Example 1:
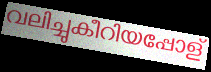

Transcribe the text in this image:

വലിച്ചുകീറിയപ്പോള്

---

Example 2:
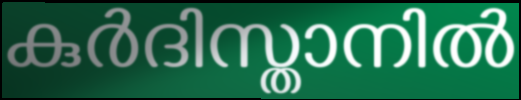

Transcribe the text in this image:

കുർദിസ്താനിൽ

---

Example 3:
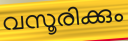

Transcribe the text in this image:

വസൂരിക്കും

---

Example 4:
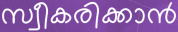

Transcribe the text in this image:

സ്വീകരിക്കാൻ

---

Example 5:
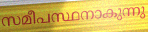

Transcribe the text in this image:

സമീപസ്ഥനാകുന്നു